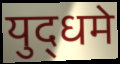
युद्धमे